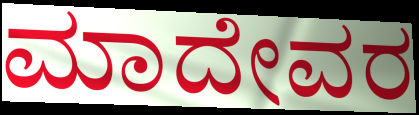
ಮಾದೇವರ